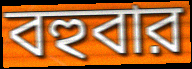
বহুবার